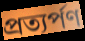
প্ৰত্যৰ্পণ